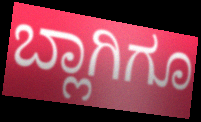
ಬ್ಲಾಗಿಗೂ